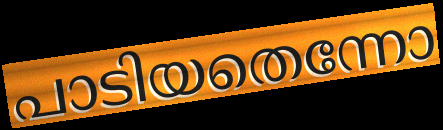
പാടിയതെന്നോ